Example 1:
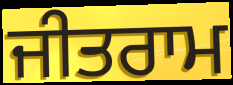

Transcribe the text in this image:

ਜੀਤਰਾਮ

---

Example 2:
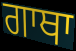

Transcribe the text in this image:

ਗਾਥਾ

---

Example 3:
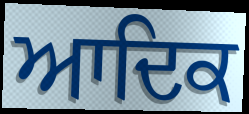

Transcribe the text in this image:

ਆਦਿਕ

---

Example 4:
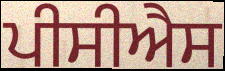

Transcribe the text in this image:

ਪੀਸੀਐਸ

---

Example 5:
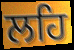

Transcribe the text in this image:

ਲਹਿ